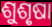
ଶୁଶୃଷା